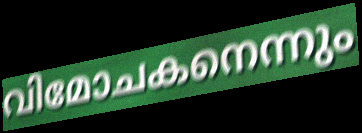
വിമോചകനെന്നും